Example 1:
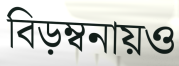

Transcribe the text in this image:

বিড়ম্বনায়ও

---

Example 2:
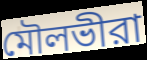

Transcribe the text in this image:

মৌলভীরা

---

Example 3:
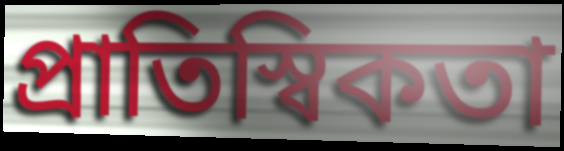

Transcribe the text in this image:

প্রাতিস্বিকতা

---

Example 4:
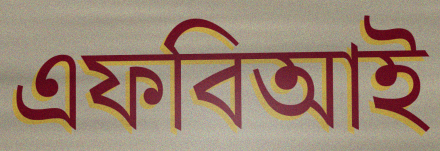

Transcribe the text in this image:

এফবিআই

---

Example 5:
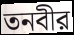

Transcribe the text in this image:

তনবীর